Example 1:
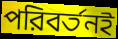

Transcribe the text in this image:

পরিবর্তনই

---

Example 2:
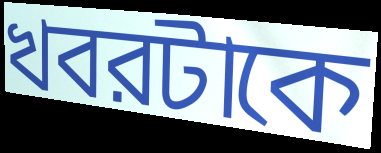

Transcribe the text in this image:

খবরটাকে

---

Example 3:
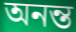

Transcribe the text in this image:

অনন্ত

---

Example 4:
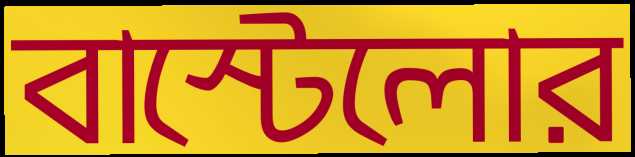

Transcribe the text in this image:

বাস্টেলোর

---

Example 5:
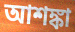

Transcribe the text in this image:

আশঙ্কা